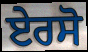
ਏਰਸੋ